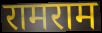
रामराम